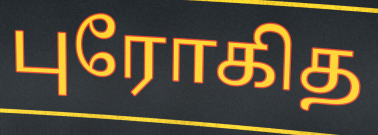
புரோகித